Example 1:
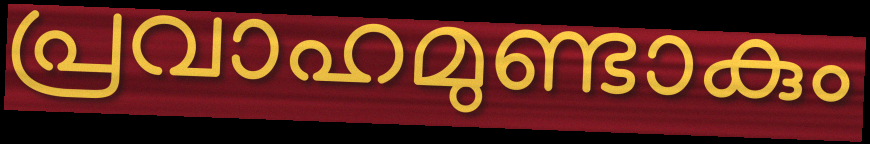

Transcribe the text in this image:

പ്രവാഹമുണ്ടാകും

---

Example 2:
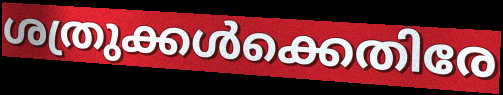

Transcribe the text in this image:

ശത്രുക്കൾക്കെതിരേ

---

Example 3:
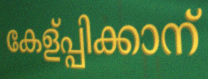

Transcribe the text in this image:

കേള്പ്പിക്കാന്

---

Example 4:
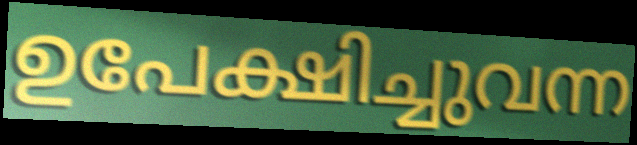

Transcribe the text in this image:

ഉപേക്ഷിച്ചുവന്ന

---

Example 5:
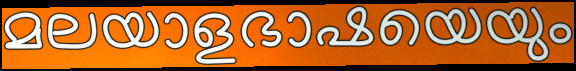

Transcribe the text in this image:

മലയാളഭാഷയെയും